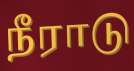
நீராடு